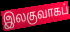
இலகுவாகப்